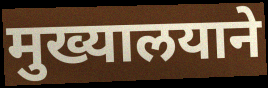
मुख्यालयाने